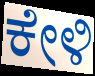
ಕೇಳಿ